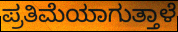
ಪ್ರತಿಮೆಯಾಗುತ್ತಾಳೆ